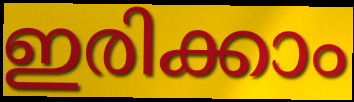
ഇരിക്കാം